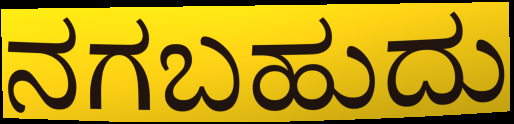
ನಗಬಹುದು